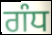
ਗੰਧ